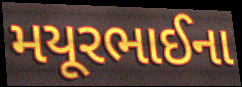
મયૂરભાઈના